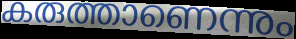
കരുത്താണെന്നും